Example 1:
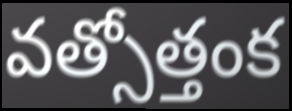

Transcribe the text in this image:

వత్సోత్తంక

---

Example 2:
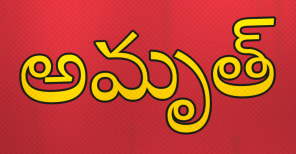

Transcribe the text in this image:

అమృత్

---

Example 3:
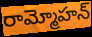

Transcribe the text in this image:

రామ్మోహన్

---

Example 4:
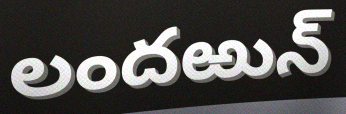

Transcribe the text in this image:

లందఱున్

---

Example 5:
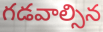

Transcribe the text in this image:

గడవాల్సిన